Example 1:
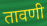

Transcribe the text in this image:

तावणी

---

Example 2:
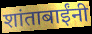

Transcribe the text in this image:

शांताबाईंनी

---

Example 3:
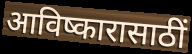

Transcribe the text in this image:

आविष्कारासाठीं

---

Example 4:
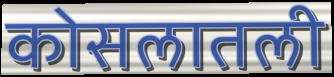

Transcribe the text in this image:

कोसलातली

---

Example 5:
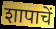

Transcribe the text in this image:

शापाचें